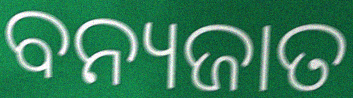
ବନ୍ୟଜାତ